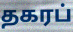
தகரப்